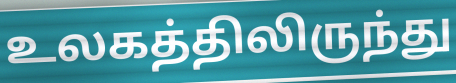
உலகத்திலிருந்து